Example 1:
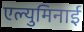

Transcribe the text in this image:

एल्युमिनाई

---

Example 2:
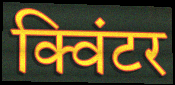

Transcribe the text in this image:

क्विंटर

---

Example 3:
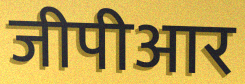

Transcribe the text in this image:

जीपीआर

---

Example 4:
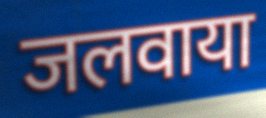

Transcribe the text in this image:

जलवाया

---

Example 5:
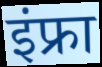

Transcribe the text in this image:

इंफ्रा